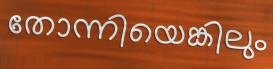
തോന്നിയെങ്കിലും